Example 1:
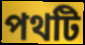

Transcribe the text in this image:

পথটি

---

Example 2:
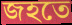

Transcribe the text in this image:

জহতে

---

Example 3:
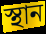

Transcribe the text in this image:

স্থান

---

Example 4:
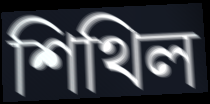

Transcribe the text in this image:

শিথিল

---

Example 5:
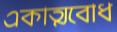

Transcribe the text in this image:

একাত্মবোধ